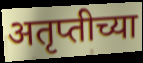
अतृप्तीच्या